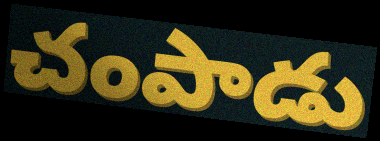
చంపాడు